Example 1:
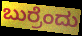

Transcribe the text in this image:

ಬುರ್ರೆಂದು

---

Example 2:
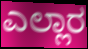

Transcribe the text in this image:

ಎಲ್ಲಾರ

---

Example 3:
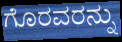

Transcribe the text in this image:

ಗೊರವರನ್ನು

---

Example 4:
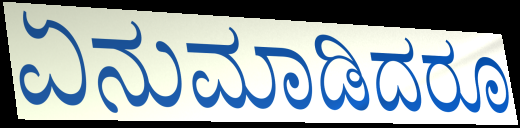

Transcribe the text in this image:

ಏನುಮಾಡಿದರೂ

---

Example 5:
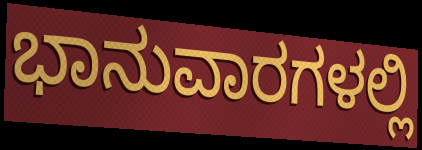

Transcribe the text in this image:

ಭಾನುವಾರಗಳಲ್ಲಿ